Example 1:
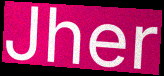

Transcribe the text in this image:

Jher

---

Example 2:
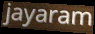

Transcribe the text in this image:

jayaram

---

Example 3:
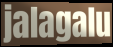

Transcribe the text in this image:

jalagalu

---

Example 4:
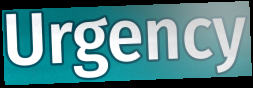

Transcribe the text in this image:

Urgency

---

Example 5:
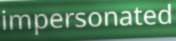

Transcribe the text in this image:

impersonated